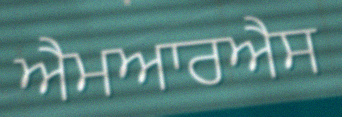
ਐਮਆਰਐਸ